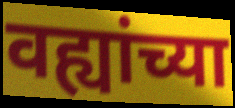
वह्यांच्या